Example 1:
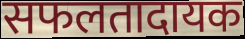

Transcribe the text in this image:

सफलतादायक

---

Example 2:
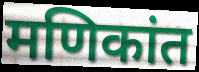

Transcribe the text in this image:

मणिकांत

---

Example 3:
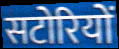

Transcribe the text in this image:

सटोरियों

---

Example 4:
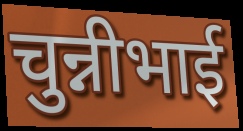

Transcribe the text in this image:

चुन्नीभाई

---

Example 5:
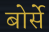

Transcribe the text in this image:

बोर्से